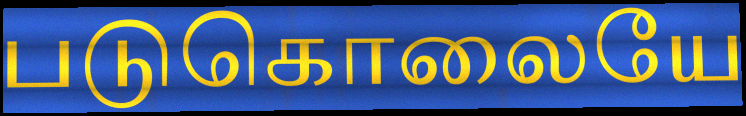
படுகொலையே